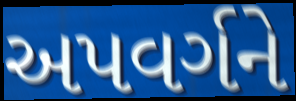
અપવર્ગને